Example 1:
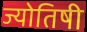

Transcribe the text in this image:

ज्योतिषी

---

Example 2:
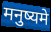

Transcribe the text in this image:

मनुष्यमे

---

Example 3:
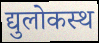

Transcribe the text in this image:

द्युलोकस्थ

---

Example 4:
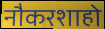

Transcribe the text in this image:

नौकरशाहो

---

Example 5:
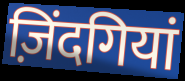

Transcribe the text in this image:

ज़िंदगियां